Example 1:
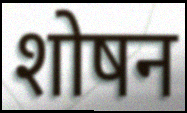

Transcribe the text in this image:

शोषन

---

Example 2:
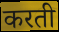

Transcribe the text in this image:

करती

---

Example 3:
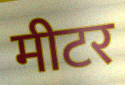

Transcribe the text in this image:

मीटर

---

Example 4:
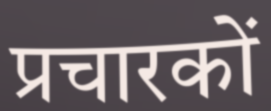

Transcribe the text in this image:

प्रचारकों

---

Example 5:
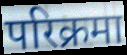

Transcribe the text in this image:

परिक्रमा